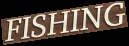
FISHING